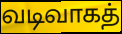
வடிவாகத்